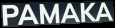
PAMAKA